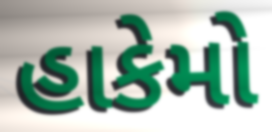
હાકેમો